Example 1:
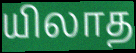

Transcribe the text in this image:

யிலாத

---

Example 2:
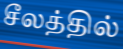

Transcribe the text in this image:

சீலத்தில்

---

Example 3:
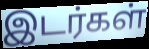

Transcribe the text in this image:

இடர்கள்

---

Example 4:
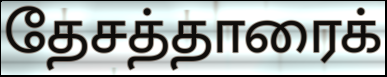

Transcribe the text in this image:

தேசத்தாரைக்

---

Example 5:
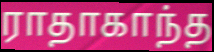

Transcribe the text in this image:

ராதாகாந்த